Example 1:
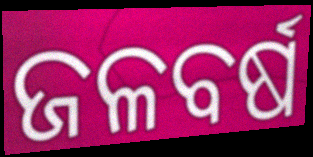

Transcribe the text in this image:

ଜଳବର୍ଷ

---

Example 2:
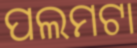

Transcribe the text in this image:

ପଲମଟା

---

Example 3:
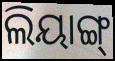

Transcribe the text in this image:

ଲିୟାଙ୍ଗ୍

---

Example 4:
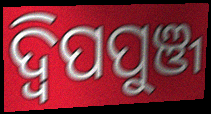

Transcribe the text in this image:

ଦ୍ଵିପପୁଞ୍ଜ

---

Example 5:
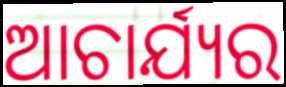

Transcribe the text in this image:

ଆଚାର୍ଯ୍ୟର